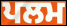
ਪਲਮ